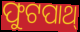
ଫୁଟପାଥ୍